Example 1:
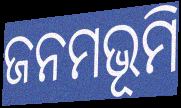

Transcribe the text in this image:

ଜନମଭୂମି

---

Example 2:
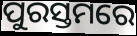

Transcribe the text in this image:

ପୁରସ୍ତମରେ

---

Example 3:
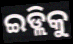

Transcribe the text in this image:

ଇଡ୍ଲିକୁ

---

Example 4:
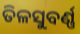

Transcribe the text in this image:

ତିଳସୁବର୍ଣ୍ଣ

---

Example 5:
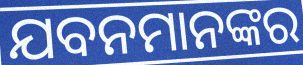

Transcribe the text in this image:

ଯବନମାନଙ୍କର